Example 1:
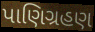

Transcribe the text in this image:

પાણિગ્રહણ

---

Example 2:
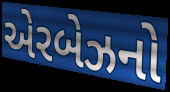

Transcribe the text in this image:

એરબેઝનો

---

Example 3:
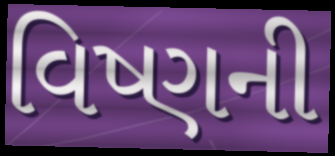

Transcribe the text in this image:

વિષ્ણની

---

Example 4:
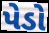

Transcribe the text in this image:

પેડો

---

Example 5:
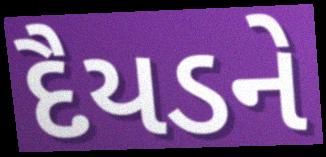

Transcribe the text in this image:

દૈયડને